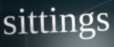
sittings